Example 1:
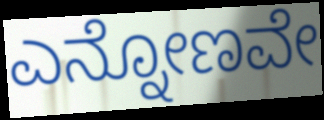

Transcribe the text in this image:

ಎನ್ನೋಣವೇ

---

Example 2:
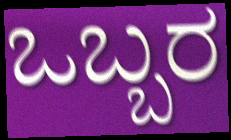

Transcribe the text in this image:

ಒಬ್ಬರ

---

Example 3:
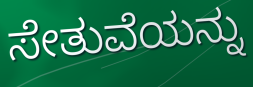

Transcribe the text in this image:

ಸೇತುವೆಯನ್ನು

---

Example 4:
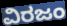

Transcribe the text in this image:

ವಿರಜಂ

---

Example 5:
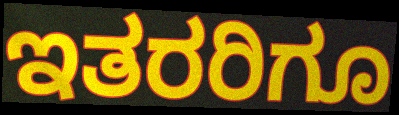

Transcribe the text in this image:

ಇತರರಿಗೂ